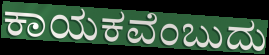
ಕಾಯಕವೆಂಬುದು